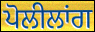
ਪੋਲੀਲਾਂਗ